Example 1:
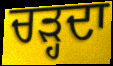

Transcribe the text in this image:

ਚੜ੍ਹਦਾ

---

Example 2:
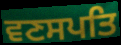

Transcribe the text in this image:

ਵਣਸਪਤਿ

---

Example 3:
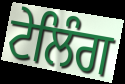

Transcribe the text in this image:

ਟੇਲਿੰਗ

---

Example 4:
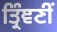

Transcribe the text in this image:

ਤ੍ਰਿੰਞਣੀਂ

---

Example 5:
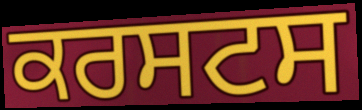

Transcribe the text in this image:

ਕਰਸਟਸ